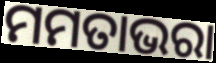
ମମତାଭରା